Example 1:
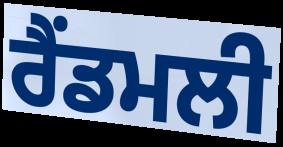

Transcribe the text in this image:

ਰੈਂਡਮਲੀ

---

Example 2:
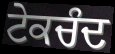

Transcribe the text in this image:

ਟੇਕਚੰਦ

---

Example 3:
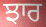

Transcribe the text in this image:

ਝਾਰ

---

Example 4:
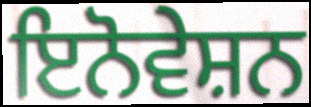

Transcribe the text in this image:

ਇਨੋਵੇਸ਼ਨ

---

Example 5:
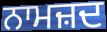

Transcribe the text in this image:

ਨਾਮਜ਼ਦ